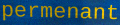
permenant